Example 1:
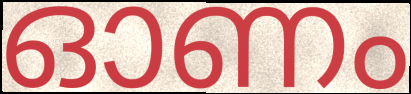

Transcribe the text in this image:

ഓണം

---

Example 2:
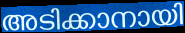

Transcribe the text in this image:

അടിക്കാനായി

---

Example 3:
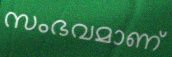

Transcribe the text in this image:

സംഭവമാണ്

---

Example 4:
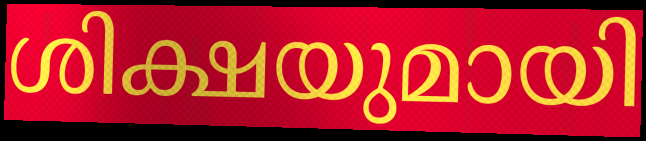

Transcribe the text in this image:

ശിക്ഷയുമായി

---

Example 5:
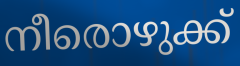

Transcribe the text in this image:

നീരൊഴുക്ക്